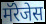
मॅरेजेस